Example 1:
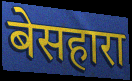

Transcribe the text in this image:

बेसहारा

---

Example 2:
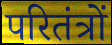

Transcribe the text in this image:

परितंत्रों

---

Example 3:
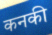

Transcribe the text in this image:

कनकी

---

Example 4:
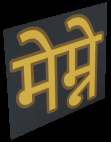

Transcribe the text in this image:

मेम्ने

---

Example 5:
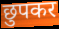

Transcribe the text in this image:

छुपकर